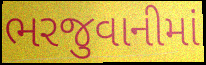
ભરજુવાનીમાં